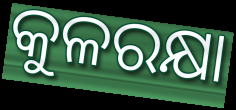
କୁଳରକ୍ଷା